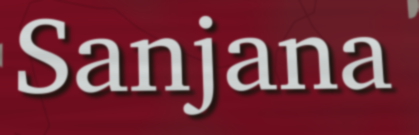
Sanjana